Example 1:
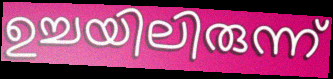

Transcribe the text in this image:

ഉച്ചയിലിരുന്ന്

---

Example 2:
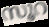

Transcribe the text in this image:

സൂറ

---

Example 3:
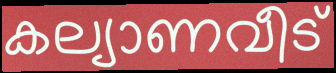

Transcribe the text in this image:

കല്യാണവീട്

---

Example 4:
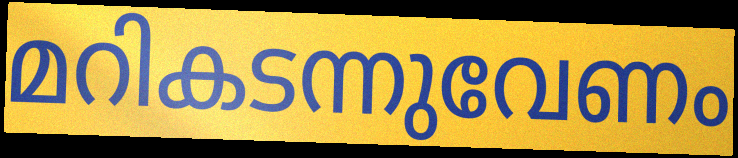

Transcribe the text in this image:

മറികടന്നുവേണം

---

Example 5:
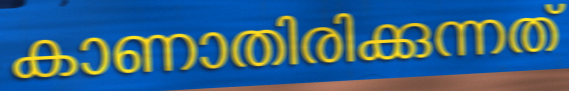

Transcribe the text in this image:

കാണാതിരിക്കുന്നത്